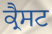
ਕ੍ਰੈਸਟ